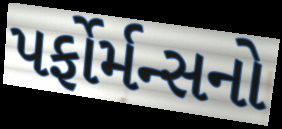
પર્ફોર્મન્સનો